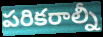
పరికరాల్నీ